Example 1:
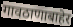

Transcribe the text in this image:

गावठाणाबाहेर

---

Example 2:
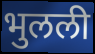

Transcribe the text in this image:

भुलली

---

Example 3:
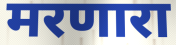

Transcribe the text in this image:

मरणारा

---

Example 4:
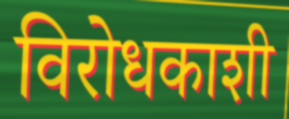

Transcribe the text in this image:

विरोधकाशी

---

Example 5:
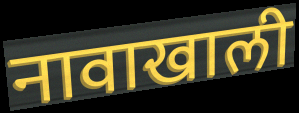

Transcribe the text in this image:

नावाखाली